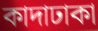
কাদাঢাকা